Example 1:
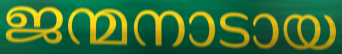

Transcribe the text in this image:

ജന്മനാടായ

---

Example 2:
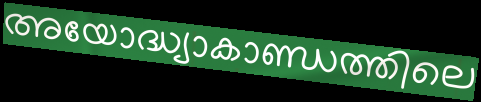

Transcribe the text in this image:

അയോദ്ധ്യാകാണ്ഡത്തിലെ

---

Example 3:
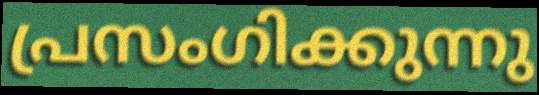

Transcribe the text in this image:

പ്രസംഗിക്കുന്നു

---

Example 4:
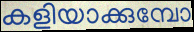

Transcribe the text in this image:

കളിയാക്കുമ്പോ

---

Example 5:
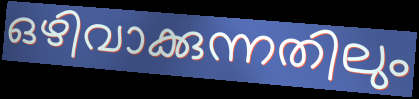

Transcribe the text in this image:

ഒഴിവാക്കുന്നതിലും